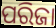
ପରିଜା